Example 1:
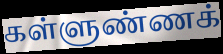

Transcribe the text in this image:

கள்ளுண்ணக்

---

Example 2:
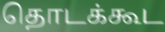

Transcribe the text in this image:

தொடக்கூட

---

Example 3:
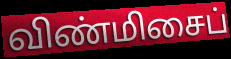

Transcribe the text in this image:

விண்மிசைப்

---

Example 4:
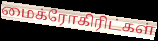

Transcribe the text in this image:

மைக்ரோகிரிட்கள்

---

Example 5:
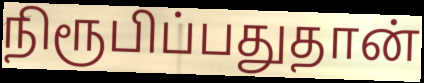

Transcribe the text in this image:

நிரூபிப்பதுதான்